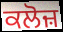
ਕਲੋਜ਼